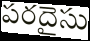
పరదైసు